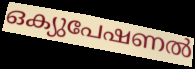
ഒക്യുപേഷണൽ